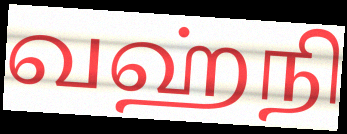
வஹ்நி